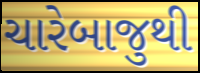
ચારેબાજુથી